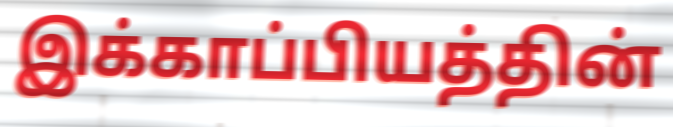
இக்காப்பியத்தின்